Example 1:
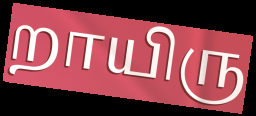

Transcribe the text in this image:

றாயிரு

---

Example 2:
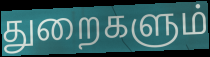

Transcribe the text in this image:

துறைகளும்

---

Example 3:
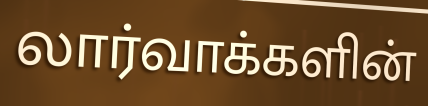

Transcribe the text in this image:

லார்வாக்களின்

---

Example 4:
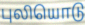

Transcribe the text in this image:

புலியொடு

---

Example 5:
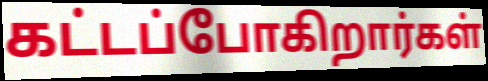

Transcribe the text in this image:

கட்டப்போகிறார்கள்